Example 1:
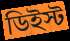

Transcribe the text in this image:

ডিইস্ট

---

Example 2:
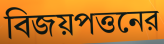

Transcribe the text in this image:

বিজয়পত্তনের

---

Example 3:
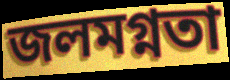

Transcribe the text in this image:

জলমগ্নতা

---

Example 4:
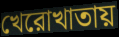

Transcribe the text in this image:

খেরোখাতায়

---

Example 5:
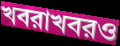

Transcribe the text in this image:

খবরাখবরও